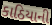
કાઠિયાની